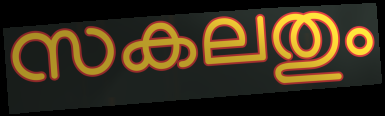
സകലതും